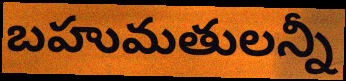
బహుమతులన్నీ